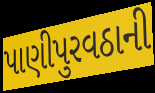
પાણીપુરવઠાની